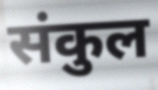
संकुल